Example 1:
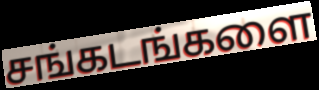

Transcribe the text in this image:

சங்கடங்களை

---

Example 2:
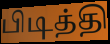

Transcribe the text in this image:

பிடித்தி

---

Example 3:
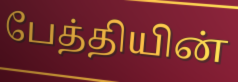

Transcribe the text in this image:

பேத்தியின்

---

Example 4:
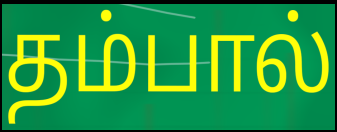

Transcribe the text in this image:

தம்பால்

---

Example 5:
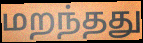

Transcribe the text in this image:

மறந்தது